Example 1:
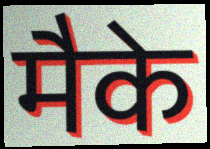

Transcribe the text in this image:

मैके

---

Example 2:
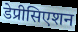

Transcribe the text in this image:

डेप्रीसिएशन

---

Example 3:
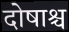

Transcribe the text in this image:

दोषाश्च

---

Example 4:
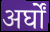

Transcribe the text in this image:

अर्घों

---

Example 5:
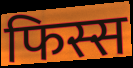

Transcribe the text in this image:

फिस्स